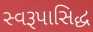
સ્વરૂપાસિદ્ધ